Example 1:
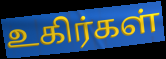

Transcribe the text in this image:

உகிர்கள்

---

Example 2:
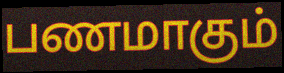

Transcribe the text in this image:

பணமாகும்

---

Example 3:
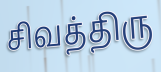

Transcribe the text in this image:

சிவத்திரு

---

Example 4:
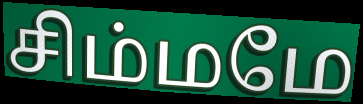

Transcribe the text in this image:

சிம்மமே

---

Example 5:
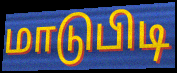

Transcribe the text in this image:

மாடுபிடி